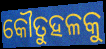
କୌତୁହଳକୁ